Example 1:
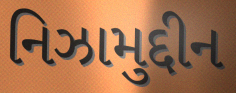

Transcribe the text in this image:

નિઝામુદ્દીન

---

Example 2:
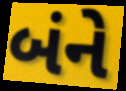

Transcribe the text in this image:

બંને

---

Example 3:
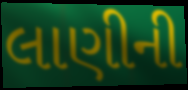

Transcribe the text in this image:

લાણીની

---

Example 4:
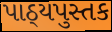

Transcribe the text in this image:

પાઠ્યપુસ્તક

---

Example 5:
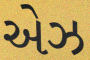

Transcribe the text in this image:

એઝ